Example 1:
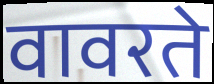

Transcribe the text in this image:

वावरते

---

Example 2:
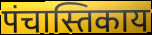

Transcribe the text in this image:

पंचास्तिकाय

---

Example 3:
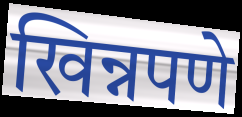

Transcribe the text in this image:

खिन्नपणे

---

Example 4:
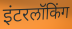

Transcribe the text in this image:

इंटरलॉकिंग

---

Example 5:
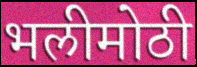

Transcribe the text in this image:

भलीमोठी